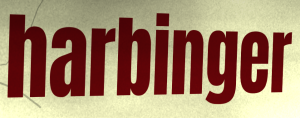
harbinger